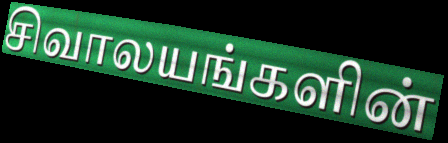
சிவாலயங்களின்